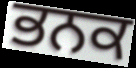
ਭਨਕ